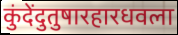
कुंदेंदुतुषारहारधवला